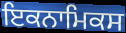
ਇਕਨਾਮਿਕਸ